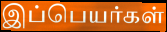
இப்பெயர்கள்